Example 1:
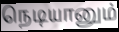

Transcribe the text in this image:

நெடியானும்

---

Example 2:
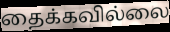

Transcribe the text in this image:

தைக்கவில்லை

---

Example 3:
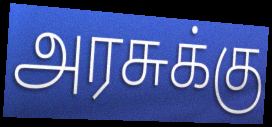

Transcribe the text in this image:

அரசுக்கு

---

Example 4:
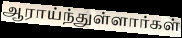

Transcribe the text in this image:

ஆராய்ந்துள்ளார்கள்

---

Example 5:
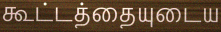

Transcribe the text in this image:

கூட்டத்தையுடைய